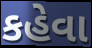
કહેવા